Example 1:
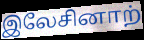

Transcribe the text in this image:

இலேசினாற்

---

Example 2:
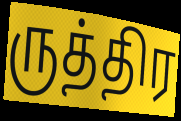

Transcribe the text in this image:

ருத்திர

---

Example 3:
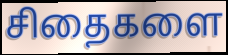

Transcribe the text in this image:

சிதைகளை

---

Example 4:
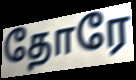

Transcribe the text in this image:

தோரே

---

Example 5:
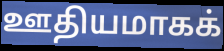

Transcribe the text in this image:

ஊதியமாகக்